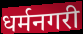
धर्मनगरी